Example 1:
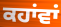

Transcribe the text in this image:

ਕਹਾਂਵਾਂ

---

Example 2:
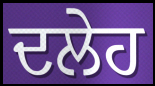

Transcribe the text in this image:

ਦਲੇਹ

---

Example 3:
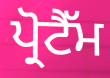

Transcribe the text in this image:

ਪ੍ਰੋਟੈੱਮ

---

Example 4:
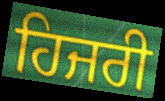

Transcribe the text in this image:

ਹਿਜਰੀ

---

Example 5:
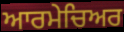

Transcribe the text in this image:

ਆਰਮੇਚਿਅਰ